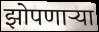
झोपणाऱ्या